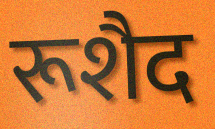
रूशैद